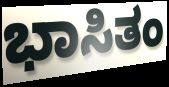
ಭಾಸಿತಂ